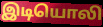
இடியொலி